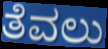
ತೆವಲು